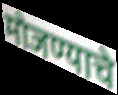
मोजण्याचे